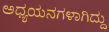
ಅಧ್ಯಯನಗಳಾಗಿದ್ದು